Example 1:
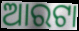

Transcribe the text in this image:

ଆରଟା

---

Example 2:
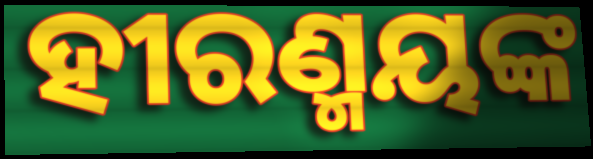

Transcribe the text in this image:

ହୀରଣ୍ମୟଙ୍କ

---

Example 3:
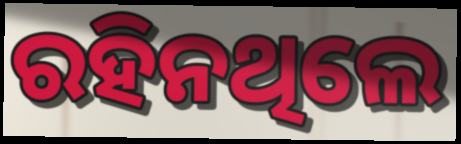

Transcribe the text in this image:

ରହିନଥିଲେ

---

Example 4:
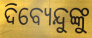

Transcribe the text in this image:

ଦିବ୍ୟେନ୍ଦୁଙ୍କୁ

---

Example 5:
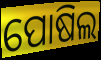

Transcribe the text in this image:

ପୋଷିଲ